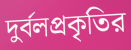
দুর্বলপ্রকৃতির